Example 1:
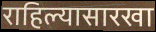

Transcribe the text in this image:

राहिल्यासारखा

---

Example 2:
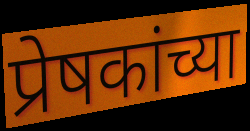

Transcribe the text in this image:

प्रेषकांच्या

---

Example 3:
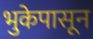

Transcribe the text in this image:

भुकेपासून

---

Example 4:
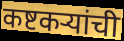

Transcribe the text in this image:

कष्टकऱ्यांची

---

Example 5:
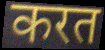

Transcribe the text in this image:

करत